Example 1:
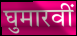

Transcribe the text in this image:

घुमारवीं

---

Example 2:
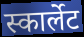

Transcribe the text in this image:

स्कार्लेट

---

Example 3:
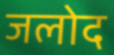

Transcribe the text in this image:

जलोद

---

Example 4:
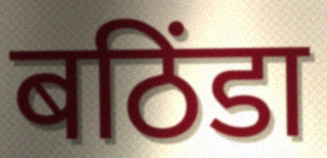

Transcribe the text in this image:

बठिंडा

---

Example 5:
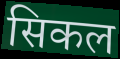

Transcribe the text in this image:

सिकल